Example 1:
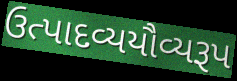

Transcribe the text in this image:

ઉત્પાદવ્યયૌવ્યરૂપ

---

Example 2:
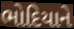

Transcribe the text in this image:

ભોદિયાને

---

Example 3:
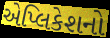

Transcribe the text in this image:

એપ્લિકેશનો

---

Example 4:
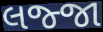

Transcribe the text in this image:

લજ્જા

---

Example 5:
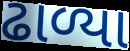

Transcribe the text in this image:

ઢાળ્યા